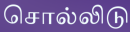
சொல்லிடு